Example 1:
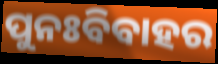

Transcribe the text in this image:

ପୁନଃବିବାହର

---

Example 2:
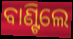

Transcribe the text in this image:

ବାଣ୍ଟିଲେ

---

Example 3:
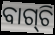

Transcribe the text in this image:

ବାଗ୍‌ଚି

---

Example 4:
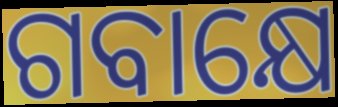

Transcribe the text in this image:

ଗବାକ୍ଷେ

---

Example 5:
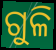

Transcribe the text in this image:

ଗୁଳି